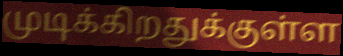
முடிக்கிறதுக்குள்ள